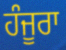
ਹੰਜੂਰਾ